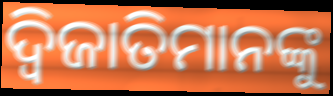
ଦ୍ୱିଜାତିମାନଙ୍କୁ